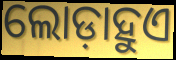
ଲୋଡ଼ାହୁଏ